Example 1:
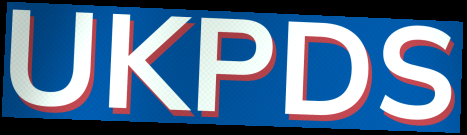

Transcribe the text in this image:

UKPDS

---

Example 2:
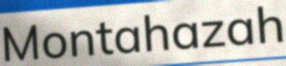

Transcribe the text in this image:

Montahazah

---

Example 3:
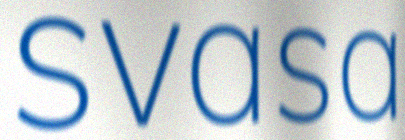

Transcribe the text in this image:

svasa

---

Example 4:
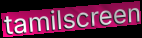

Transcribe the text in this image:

tamilscreen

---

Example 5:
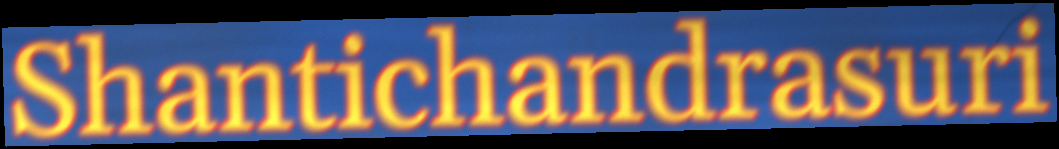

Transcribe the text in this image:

Shantichandrasuri